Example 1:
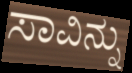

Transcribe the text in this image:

ಸಾವಿನ್ನು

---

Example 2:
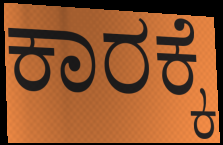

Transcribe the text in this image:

ಕಾರಕ್ಕೆ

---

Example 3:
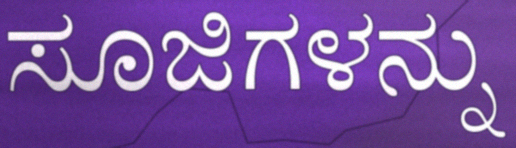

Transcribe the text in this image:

ಸೂಜಿಗಳನ್ನು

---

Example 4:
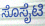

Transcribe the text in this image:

ಸೊಸೈಟಿ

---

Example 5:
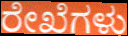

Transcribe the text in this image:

ರೇಖೆಗಳು